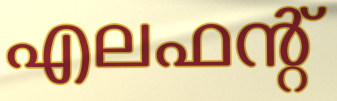
എലഫന്റ്